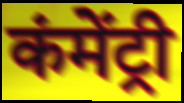
कंमेंट्री